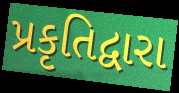
પ્રકૃતિદ્વારા